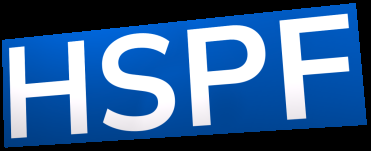
HSPF